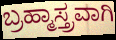
ಬ್ರಹ್ಮಾಸ್ತ್ರವಾಗಿ